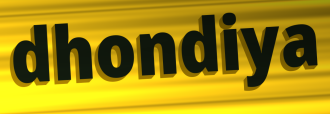
dhondiya